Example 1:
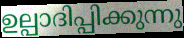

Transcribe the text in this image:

ഉല്പാദിപ്പിക്കുന്നു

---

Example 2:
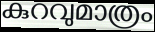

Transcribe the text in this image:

കുറവുമാത്രം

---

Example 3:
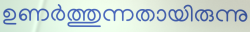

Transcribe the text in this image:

ഉണർത്തുന്നതായിരുന്നു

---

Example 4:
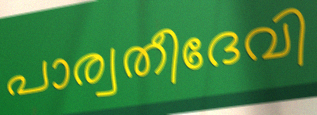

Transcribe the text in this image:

പാര്വതീദേവി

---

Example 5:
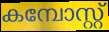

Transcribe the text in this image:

കമ്പോസ്റ്റ്